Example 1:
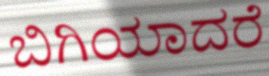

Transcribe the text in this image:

ಬಿಗಿಯಾದರೆ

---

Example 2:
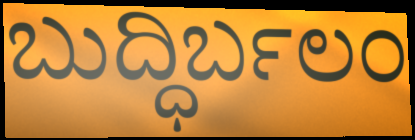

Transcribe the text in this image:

ಬುದ್ಧಿರ್ಬಲಂ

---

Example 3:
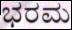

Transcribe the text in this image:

ಭರಮ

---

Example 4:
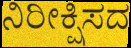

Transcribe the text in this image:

ನಿರೀಕ್ಷಿಸದ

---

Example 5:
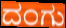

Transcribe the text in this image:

ದಂಗು